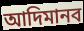
আদিমানব